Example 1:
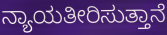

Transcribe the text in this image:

ನ್ಯಾಯತೀರಿಸುತ್ತಾನೆ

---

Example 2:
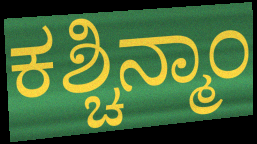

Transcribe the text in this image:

ಕಶ್ಚಿನ್ಮಾಂ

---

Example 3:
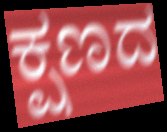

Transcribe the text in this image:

ಕ್ಷಣದ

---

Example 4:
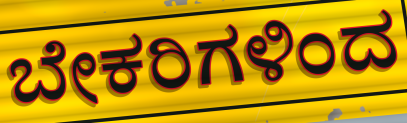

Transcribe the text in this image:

ಬೇಕರಿಗಳಿಂದ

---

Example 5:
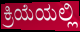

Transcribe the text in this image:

ಕ್ರಿಯೆಯಲ್ಲಿ